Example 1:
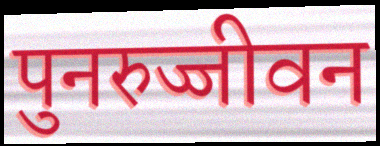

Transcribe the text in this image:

पुनरुज्जीवन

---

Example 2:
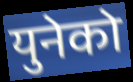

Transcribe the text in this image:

युनेको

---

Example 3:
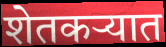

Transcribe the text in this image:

शेतकऱ्यात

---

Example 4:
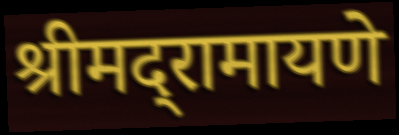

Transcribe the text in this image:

श्रीमद्‌रामायणे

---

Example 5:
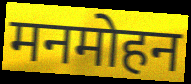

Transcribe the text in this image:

मनमोहन